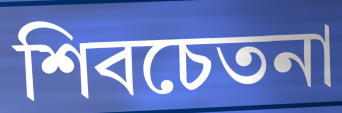
শিবচেতনা